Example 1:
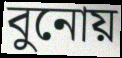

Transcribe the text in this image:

বুনোয়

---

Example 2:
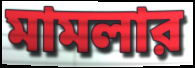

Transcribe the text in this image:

মামলার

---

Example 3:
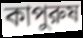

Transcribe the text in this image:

কাপুরুষ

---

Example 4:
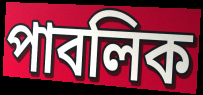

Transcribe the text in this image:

পাবলিক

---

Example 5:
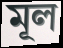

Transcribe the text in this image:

মূল